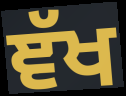
ਞੱਖ